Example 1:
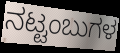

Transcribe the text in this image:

ನಟ್ಟಂಬುಗಳ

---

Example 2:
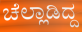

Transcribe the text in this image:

ಚೆಲ್ಲಾಡಿದ್ದ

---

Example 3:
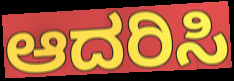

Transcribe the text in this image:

ಆದರಿಸಿ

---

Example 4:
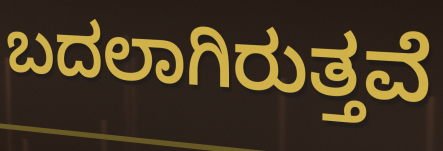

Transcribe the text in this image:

ಬದಲಾಗಿರುತ್ತವೆ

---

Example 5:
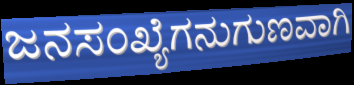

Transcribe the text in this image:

ಜನಸಂಖ್ಯೆಗನುಗುಣವಾಗಿ